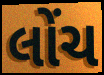
લોંચ